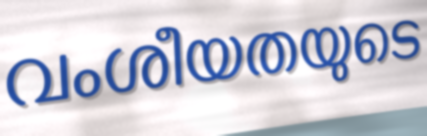
വംശീയതയുടെ